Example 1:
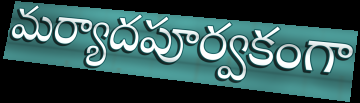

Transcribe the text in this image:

మర్యాదపూర్వకంగా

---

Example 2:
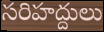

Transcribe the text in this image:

సరిహద్దులు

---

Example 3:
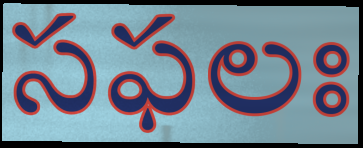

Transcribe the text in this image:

సఫలః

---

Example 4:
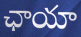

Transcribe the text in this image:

ఛాయా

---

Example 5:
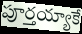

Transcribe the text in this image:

పూర్తయ్యాకే